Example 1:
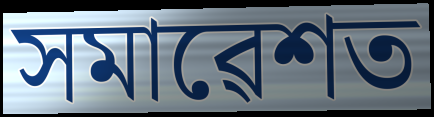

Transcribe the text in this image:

সমাৱেশত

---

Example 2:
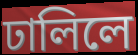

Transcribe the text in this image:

ঢালিলে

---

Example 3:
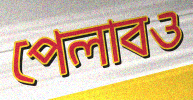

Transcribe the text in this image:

পেলাবও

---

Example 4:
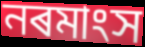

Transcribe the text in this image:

নৰমাংস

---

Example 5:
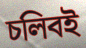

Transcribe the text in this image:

চলিবই